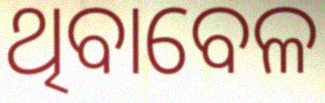
ଥିବାବେଳ